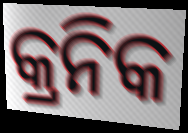
କ୍ରନିକ